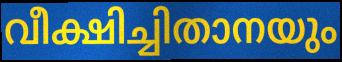
വീക്ഷിച്ചിതാനയും